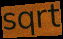
sqrt